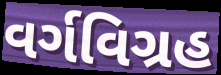
વર્ગવિગ્રહ